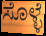
ಸೊಳ್ಳೆ